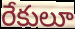
రేకులూ